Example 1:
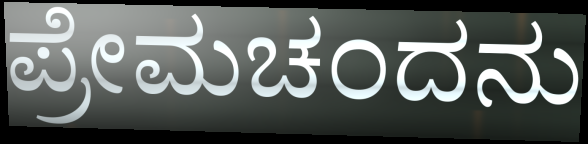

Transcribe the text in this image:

ಪ್ರೇಮಚಂದನು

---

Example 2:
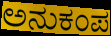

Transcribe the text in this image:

ಅನುಕಂಪ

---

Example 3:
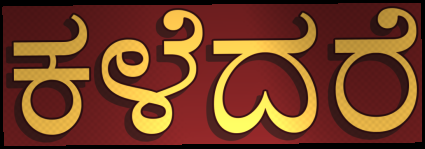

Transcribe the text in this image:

ಕಳೆದರೆ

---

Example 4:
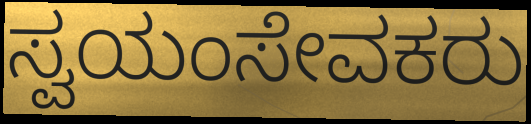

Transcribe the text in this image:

ಸ್ವಯಂಸೇವಕರು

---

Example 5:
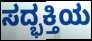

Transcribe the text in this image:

ಸದ್ಭಕ್ತಿಯ